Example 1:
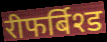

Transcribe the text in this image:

रीफर्बिश्ड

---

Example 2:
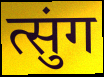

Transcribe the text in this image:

त्सुंग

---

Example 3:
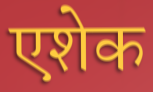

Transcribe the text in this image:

एशेक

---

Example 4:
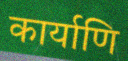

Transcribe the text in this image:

कार्याणि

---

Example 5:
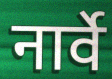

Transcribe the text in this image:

नार्वे